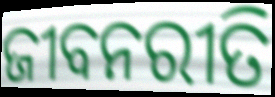
ଜୀବନରୀତି